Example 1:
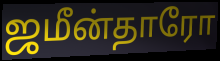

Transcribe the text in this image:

ஜமீன்தாரோ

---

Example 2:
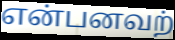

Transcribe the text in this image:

என்பனவற்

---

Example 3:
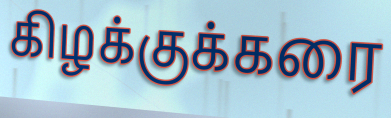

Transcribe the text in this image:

கிழக்குக்கரை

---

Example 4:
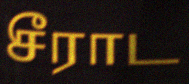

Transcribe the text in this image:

சீராட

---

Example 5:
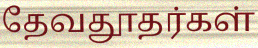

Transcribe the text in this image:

தேவதூதர்கள்